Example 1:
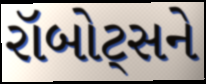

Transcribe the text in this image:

રૉબોટ્સને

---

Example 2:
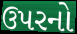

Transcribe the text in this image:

ઉપરનો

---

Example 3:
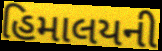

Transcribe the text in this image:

હિમાલયની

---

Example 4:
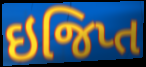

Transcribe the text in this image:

ઇજિપ્ત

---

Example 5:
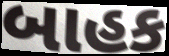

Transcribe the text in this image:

બાહક